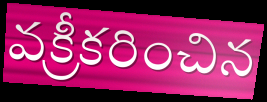
వక్రీకరించిన